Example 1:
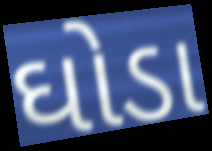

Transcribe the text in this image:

ઘોડા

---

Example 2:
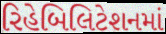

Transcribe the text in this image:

રિહેબિલિટેશનમાં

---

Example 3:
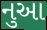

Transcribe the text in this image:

નુઆ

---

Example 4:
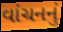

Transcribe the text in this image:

વાંચનનું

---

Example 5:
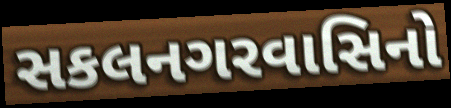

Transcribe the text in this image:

સકલનગરવાસિનો